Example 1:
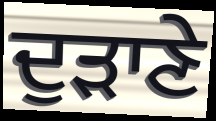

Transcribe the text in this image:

ਦੁੜਾਣੇ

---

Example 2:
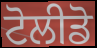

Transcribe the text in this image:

ਟੋਲੀਡੋ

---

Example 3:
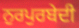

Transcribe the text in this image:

ਨੁਰਪੁਰਬੇਦੀ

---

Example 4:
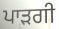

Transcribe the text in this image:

ਪਾੜਗੀ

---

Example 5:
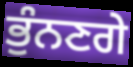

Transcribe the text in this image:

ਭੁੰਨਣਗੇ